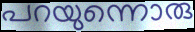
പറയുന്നൊരു